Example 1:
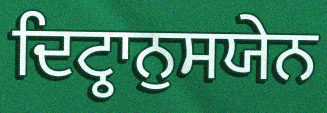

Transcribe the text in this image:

ਦਿਟ੍ਠਾਨੁਸਯੇਨ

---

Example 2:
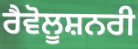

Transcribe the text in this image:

ਰੈਵੋਲੂਸ਼ਨਰੀ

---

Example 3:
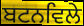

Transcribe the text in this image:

ਬਟਨਵਿਲੇ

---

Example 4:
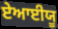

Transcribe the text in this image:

ਏਆਈਯੂ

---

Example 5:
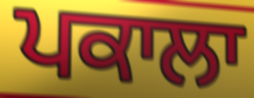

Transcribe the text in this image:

ਪਕਾਲਾ